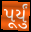
પૂર્યું